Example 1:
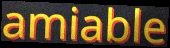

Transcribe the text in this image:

amiable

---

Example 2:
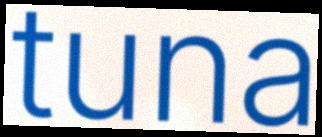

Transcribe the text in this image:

tuna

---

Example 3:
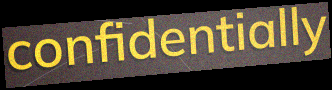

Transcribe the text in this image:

confidentially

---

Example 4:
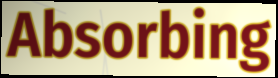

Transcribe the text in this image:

Absorbing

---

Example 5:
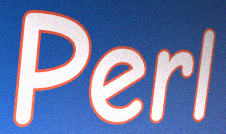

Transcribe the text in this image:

Perl